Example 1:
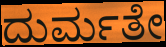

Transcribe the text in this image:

ದುರ್ಮತೇ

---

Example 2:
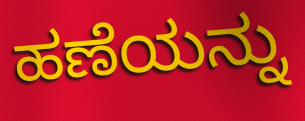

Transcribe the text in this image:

ಹಣೆಯನ್ನು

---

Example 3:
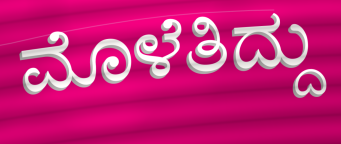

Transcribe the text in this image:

ಮೊಳೆತಿದ್ದು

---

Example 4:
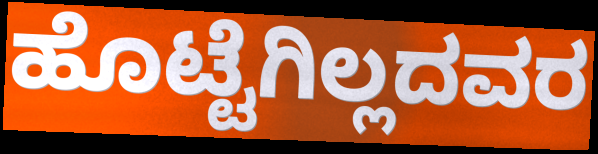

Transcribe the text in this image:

ಹೊಟ್ಟೆಗಿಲ್ಲದವರ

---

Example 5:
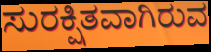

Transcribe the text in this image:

ಸುರಕ್ಷಿತವಾಗಿರುವ